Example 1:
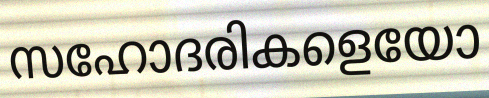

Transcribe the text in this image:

സഹോദരികളെയോ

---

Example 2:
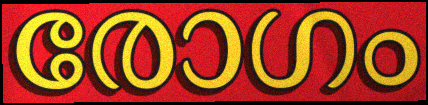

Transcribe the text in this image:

രോഗം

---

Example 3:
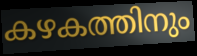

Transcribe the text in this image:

കഴകത്തിനും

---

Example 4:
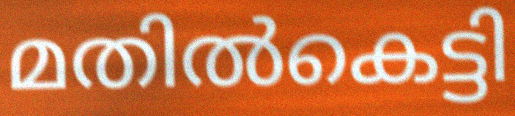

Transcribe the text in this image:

മതിൽകെട്ടി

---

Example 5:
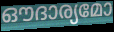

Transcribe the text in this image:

ഔദാര്യമോ